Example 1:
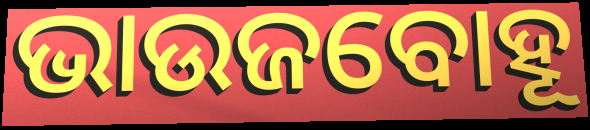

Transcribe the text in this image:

ଭାଉଜବୋହୂ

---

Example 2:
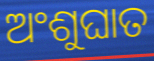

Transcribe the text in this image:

ଅଂଶୁଘାତ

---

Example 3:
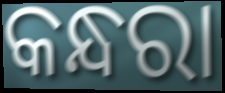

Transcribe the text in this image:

କନ୍ଧରା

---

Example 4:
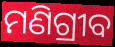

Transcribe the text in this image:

ମଣିଗ୍ରୀବ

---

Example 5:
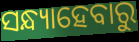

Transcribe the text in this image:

ସନ୍ଧ୍ୟାହେବାରୁ